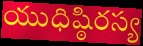
యుధిష్ఠిరస్య